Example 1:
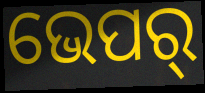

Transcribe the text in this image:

ଭେପର୍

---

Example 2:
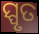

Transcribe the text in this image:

ସ୍ପୃତ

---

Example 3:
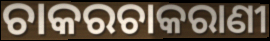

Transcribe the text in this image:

ଚାକରଚାକରାଣୀ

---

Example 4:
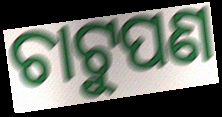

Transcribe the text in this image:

ଚାଟୁପଣ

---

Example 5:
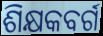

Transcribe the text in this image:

ଶିକ୍ଷକବର୍ଗ